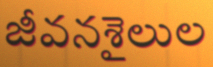
జీవనశైలుల